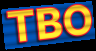
TBO